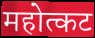
महोत्कट